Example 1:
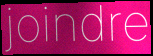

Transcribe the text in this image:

joindre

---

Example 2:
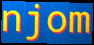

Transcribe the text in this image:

njom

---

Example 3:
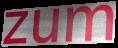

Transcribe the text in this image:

zum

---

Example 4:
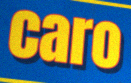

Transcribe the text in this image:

caro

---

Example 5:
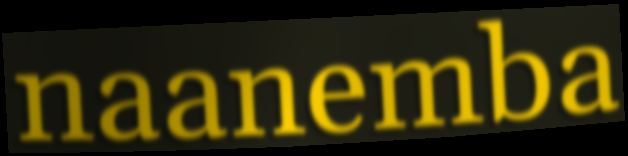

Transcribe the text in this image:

naanemba